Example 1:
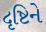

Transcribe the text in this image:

દૃષ્ટિને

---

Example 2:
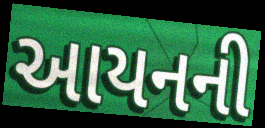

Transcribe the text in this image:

આયનની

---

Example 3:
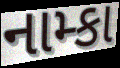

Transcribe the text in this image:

નામ્કા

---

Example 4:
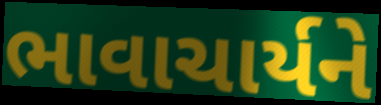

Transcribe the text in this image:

ભાવાચાર્યને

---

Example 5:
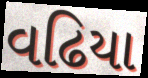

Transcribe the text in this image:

વઢિયા